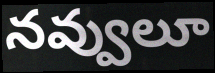
నవ్వులూ